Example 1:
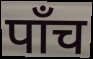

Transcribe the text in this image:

पॉंच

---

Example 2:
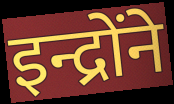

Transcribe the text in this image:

इन्द्रोंने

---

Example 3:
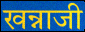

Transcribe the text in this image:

खन्नाजी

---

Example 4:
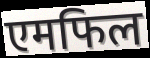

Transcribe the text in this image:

एमफिल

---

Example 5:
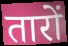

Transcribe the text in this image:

तारों